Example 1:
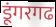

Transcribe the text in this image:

डूंगरगढ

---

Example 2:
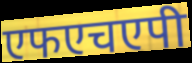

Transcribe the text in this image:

एफएचएपी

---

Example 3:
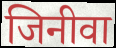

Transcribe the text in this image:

जिनीवा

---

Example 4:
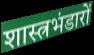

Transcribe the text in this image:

शास्त्रभंडारों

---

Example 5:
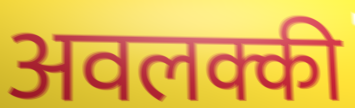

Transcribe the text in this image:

अवलक्की